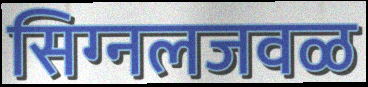
सिग्नलजवळ